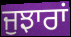
ਜੁਝਾਰਾਂ